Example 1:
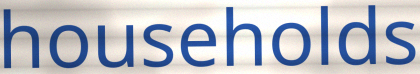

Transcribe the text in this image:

households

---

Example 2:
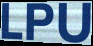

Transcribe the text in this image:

LPU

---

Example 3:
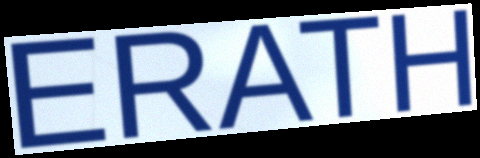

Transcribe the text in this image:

ERATH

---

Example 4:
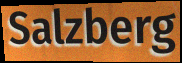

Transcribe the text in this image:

Salzberg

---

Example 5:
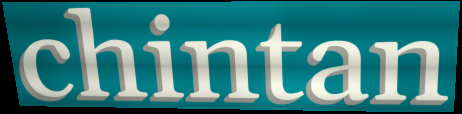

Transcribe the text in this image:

chintan